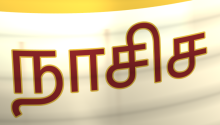
நாசிச